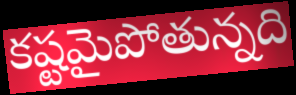
కష్టమైపోతున్నది